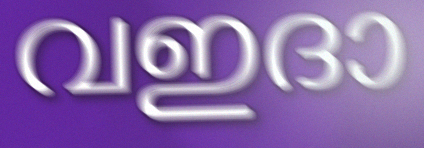
വഇദാ